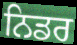
ਨਿਡਰ